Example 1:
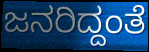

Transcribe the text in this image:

ಜನರಿದ್ದಂತೆ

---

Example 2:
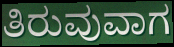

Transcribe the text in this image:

ತಿರುವುವಾಗ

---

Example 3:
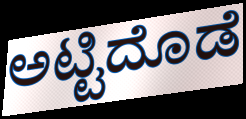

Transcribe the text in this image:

ಅಟ್ಟಿದೊಡೆ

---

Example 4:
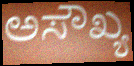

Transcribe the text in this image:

ಅಸೌಖ್ಯ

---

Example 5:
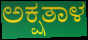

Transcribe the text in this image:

ಅಕ್ಷತಾಳ